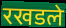
रखडले